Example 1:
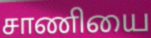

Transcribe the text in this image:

சாணியை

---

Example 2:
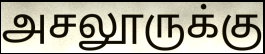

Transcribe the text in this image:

அசலூருக்கு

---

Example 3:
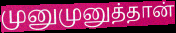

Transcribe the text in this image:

முனுமுனுத்தான்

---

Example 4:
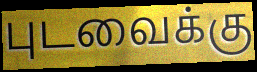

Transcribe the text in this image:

புடவைக்கு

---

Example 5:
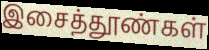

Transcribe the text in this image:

இசைத்தூண்கள்